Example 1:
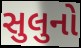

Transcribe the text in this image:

સુલુનો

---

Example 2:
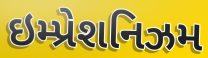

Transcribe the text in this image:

ઇમ્પ્રેશનિઝમ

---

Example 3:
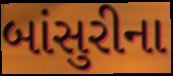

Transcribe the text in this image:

બાંસુરીના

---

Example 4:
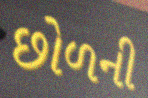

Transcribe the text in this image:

છોળની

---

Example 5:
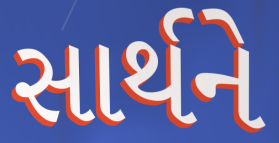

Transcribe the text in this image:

સાર્થને